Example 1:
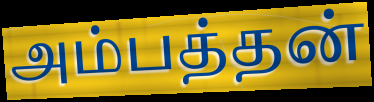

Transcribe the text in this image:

அம்பத்தன்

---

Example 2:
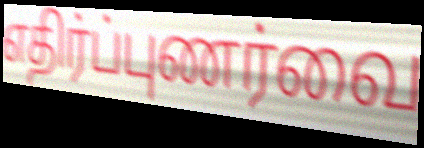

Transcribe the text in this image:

எதிர்ப்புணர்வை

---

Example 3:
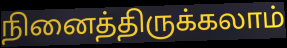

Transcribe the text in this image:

நினைத்திருக்கலாம்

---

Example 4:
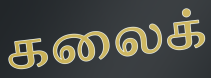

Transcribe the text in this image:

கலைக்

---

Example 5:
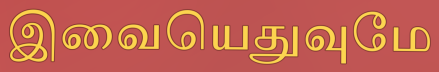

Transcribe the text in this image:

இவையெதுவுமே